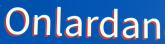
Onlardan